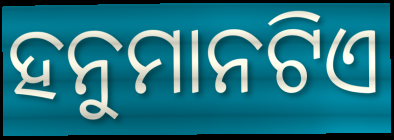
ହନୁମାନଟିଏ